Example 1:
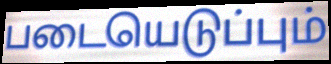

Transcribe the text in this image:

படையெடுப்பும்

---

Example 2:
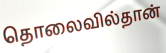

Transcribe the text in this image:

தொலைவில்தான்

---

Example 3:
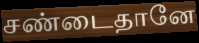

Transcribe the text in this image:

சண்டைதானே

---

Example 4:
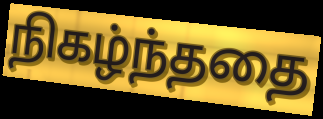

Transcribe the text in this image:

நிகழ்ந்ததை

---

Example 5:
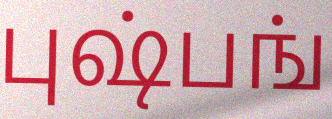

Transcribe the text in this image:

புஷ்பங்